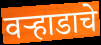
वऱ्हाडाचे